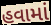
હવામાં